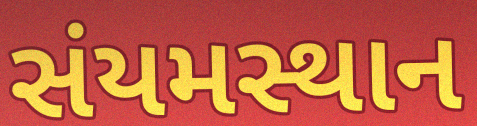
સંયમસ્થાન